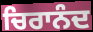
ਚਿਰਾਨੰਦ